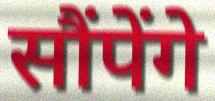
सौंपेंगे